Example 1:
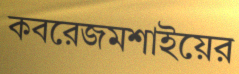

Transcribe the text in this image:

কবরেজমশাইয়ের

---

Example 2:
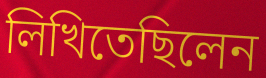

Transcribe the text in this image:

লিখিতেছিলেন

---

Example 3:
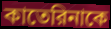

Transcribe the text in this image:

কাতেরিনাকে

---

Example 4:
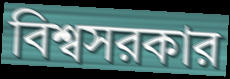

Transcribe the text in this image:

বিশ্বসরকার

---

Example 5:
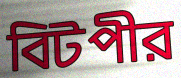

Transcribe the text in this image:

বিটপীর